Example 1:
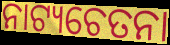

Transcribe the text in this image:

ନାଟ୍ୟଚେତନା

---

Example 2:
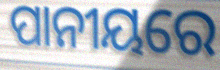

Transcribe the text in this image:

ପାନୀୟରେ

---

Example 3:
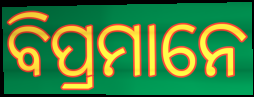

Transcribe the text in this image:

ବିପ୍ରମାନେ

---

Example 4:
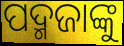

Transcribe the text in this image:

ପଦ୍ମଜାଙ୍କୁ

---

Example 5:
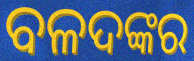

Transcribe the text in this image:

ବଳଦଙ୍କର